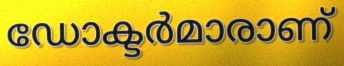
ഡോക്ടർമാരാണ്